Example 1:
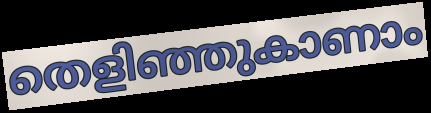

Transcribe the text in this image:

തെളിഞ്ഞുകാണാം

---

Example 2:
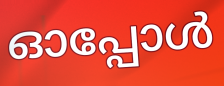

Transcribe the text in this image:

ഓപ്പോൾ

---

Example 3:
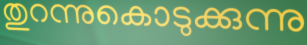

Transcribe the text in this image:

തുറന്നുകൊടുക്കുന്നു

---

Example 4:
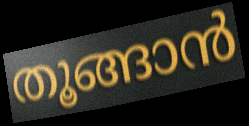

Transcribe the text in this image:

തൂങ്ങാൻ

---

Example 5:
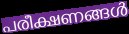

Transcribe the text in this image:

പരീക്ഷണങ്ങൾ